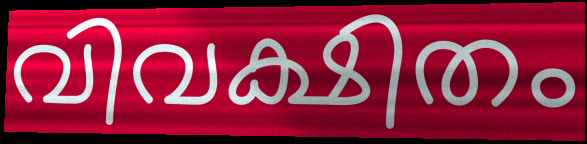
വിവക്ഷിതം